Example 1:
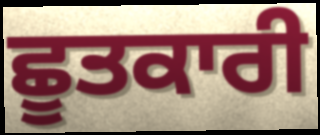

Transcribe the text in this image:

ਛੂਤਕਾਰੀ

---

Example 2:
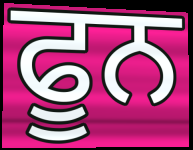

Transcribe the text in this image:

ਫੂਨ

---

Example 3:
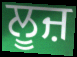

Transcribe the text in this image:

ਲੂਜ਼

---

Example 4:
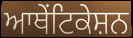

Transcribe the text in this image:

ਆਥੇਂਟਿਕੇਸ਼ਨ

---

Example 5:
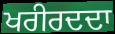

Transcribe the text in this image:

ਖਰੀਰਦਦਾ